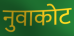
नुवाकोट